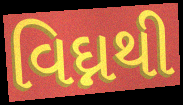
વિઘ્નથી